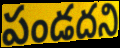
పండదని